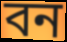
বন